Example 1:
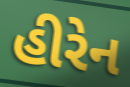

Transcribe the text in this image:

હીરેન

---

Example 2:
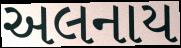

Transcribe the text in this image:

અલનાય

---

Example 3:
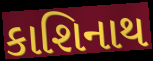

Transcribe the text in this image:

કાશિનાથ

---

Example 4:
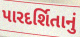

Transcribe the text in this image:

પારદર્શિતાનું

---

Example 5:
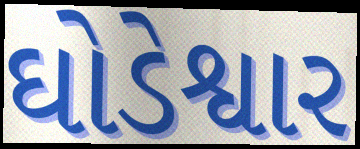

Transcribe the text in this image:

ઘોડેશ્વાર